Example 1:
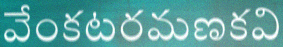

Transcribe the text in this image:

వేంకటరమణకవి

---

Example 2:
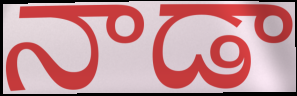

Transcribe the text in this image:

నాడా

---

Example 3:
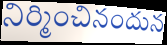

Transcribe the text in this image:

నిర్మించినందున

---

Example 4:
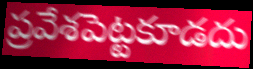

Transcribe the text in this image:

ప్రవేశపెట్టకూడదు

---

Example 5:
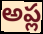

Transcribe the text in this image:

అప్ల